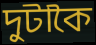
দুটাকৈ